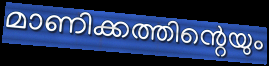
മാണിക്കത്തിന്റെയും